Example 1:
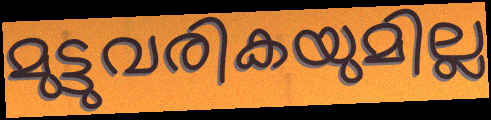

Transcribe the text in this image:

മുട്ടുവരികയുമില്ല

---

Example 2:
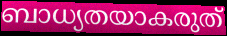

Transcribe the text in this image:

ബാധ്യതയാകരുത്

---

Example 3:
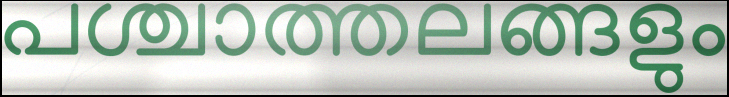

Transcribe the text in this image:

പശ്ചാത്തലങ്ങളും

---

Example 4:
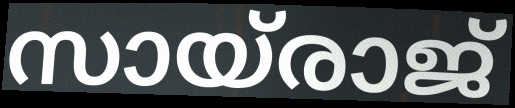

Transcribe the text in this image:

സായ്രാജ്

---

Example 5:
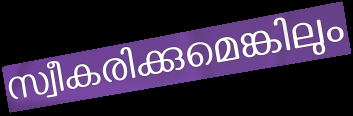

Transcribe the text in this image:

സ്വീകരിക്കുമെങ്കിലും